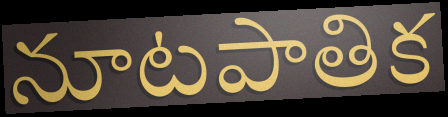
నూటపాతిక